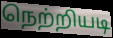
நெற்றியடி